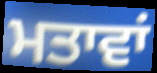
ਮਤਾਵਾਂ